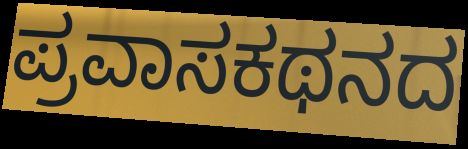
ಪ್ರವಾಸಕಥನದ